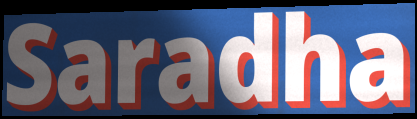
Saradha